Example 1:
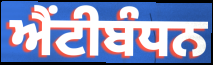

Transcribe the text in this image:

ਐਂਟੀਬੰਧਨ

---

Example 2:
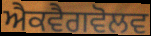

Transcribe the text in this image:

ਐਕਵੈਗਵੋਲਵ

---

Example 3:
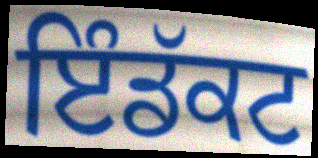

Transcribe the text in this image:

ਇੰਡੱਕਟ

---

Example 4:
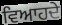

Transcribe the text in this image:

ਵਿਆਹਦੇ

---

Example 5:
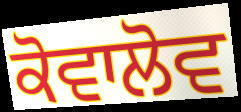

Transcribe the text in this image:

ਕੋਵਾਲੋਵ